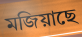
মজিয়াছে